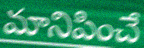
మానిపించే